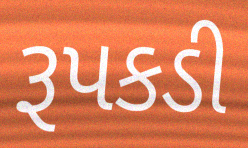
રૂપકડી